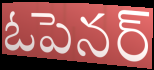
ఓపెనర్